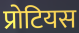
प्रोटियस